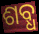
ଶବ୍ଧ